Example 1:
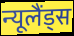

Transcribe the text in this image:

न्यूलैंड्स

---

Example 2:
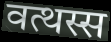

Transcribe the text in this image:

वत्थस्स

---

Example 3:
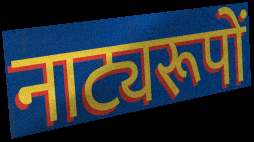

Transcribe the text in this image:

नाट्यरूपों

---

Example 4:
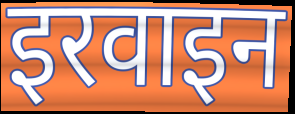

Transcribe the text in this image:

इरवाइन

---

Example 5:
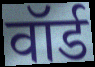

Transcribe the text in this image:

वॉर्ड